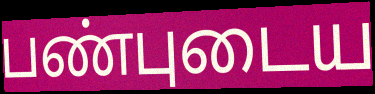
பண்புடைய